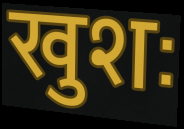
खुशः